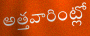
అత్తవారింట్లో